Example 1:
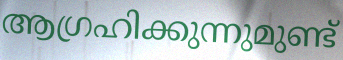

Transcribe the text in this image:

ആഗ്രഹിക്കുന്നുമുണ്ട്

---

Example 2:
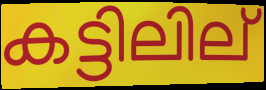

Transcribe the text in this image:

കട്ടിലില്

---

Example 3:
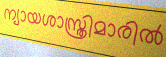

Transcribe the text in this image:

ന്യായശാസ്ത്രിമാരിൽ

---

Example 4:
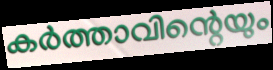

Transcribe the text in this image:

കർത്താവിന്റെയും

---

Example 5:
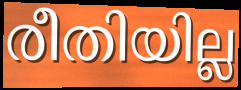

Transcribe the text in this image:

രീതിയില്ല